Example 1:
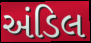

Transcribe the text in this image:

અંડિલ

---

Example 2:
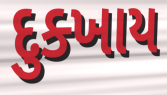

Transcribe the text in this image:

દુક્ખાય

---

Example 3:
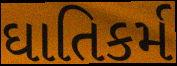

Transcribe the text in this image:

ઘાતિકર્મ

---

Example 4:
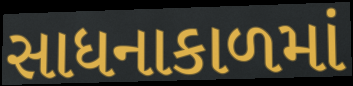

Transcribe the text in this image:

સાધનાકાળમાં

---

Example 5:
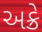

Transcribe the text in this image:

અક્રે